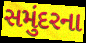
સમુંદરના